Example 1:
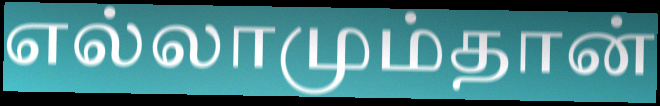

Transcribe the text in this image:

எல்லாமும்தான்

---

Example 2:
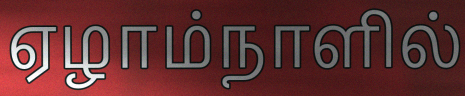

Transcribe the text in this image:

ஏழாம்நாளில்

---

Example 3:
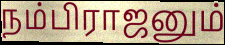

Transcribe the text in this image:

நம்பிராஜனும்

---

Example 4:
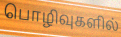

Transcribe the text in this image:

பொழிவுகளில்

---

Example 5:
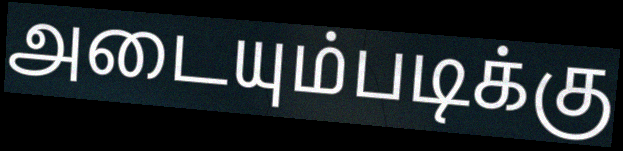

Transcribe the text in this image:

அடையும்படிக்கு